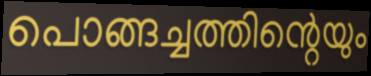
പൊങ്ങച്ചത്തിന്റെയും